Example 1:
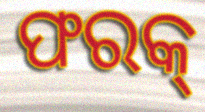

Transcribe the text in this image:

ଫରକ୍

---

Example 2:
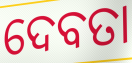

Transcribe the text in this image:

ଦେବତା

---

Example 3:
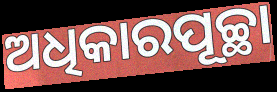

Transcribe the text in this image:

ଅଧିକାରପୂଚ୍ଛା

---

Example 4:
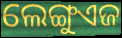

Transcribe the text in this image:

ଲେଙ୍ଗୁଏଜ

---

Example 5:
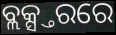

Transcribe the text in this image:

ବ୍ଲକ୍ସ୍ତରରେ